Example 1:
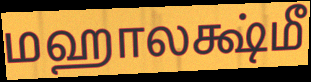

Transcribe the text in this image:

மஹாலக்ஷ்மீ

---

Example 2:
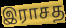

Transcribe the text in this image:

இராசத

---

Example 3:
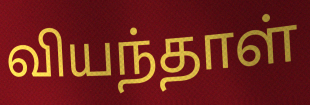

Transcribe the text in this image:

வியந்தாள்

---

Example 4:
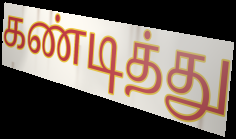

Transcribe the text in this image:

கண்டித்து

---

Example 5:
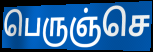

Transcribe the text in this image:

பெருஞ்செ